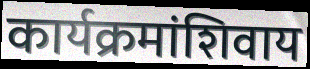
कार्यक्रमांशिवाय